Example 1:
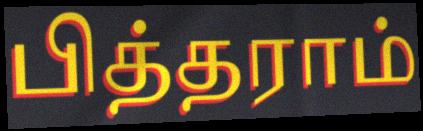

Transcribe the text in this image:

பித்தராம்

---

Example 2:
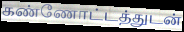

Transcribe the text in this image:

கண்ணோட்டத்துடன்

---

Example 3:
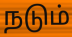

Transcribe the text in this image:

நடும்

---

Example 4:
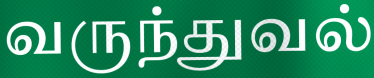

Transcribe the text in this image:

வருந்துவல்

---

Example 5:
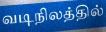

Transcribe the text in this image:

வடிநிலத்தில்